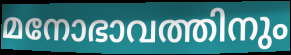
മനോഭാവത്തിനും